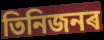
তিনিজনৰ